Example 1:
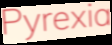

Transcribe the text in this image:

Pyrexia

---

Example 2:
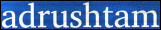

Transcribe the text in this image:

adrushtam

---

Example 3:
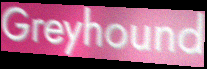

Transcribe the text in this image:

Greyhound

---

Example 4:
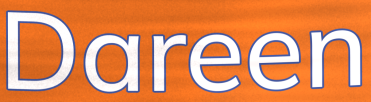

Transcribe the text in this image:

Dareen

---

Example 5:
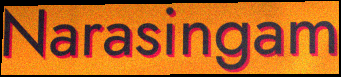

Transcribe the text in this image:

Narasingam